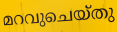
മറവുചെയ്തു